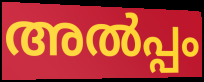
അൽപ്പം